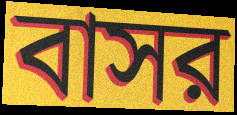
বাসর